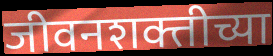
जीवनशक्तीच्या